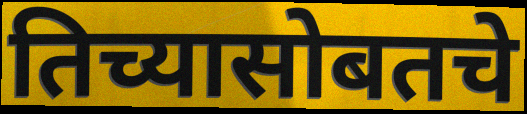
तिच्यासोबतचे